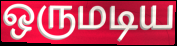
ஒருமடிய